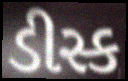
ડીસ્ક